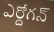
ఎర్దోగన్